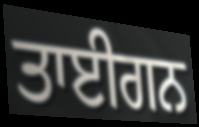
ਤਾਈਗਨ